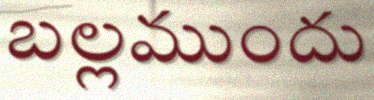
బల్లముందు